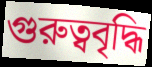
গুরুত্ববৃদ্ধি